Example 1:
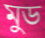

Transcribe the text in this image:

মুড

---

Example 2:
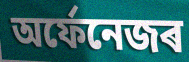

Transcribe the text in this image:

অৰ্ফেনেজৰ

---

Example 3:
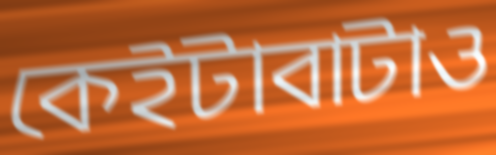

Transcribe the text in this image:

কেইটাবাটাও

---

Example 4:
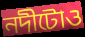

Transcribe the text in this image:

নদীটোও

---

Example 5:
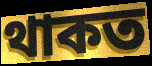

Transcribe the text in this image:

থাকত